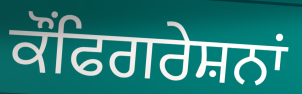
ਕੌਂਫਿਗਰੇਸ਼ਨਾਂ